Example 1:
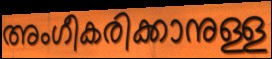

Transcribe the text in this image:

അംഗീകരിക്കാനുള്ള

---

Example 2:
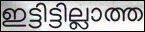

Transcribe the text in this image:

ഇട്ടിട്ടില്ലാത്ത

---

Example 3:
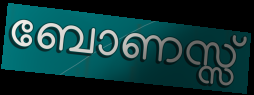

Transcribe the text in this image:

ബോണസ്സ്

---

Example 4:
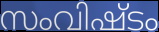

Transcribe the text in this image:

സംവിഷ്ടം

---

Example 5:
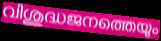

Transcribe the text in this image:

വിശുദ്ധജനത്തെയും